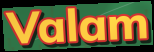
Valam